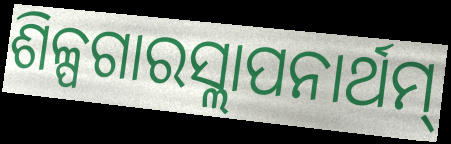
ଶିଳ୍ପଗାରସ୍ଲାପନାର୍ଥମ୍